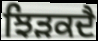
ਝਿੜਕਦੈ